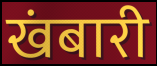
खंबारी